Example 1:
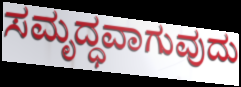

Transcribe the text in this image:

ಸಮೃದ್ಧವಾಗುವುದು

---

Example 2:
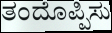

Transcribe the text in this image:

ತಂದೊಪ್ಪಿಸು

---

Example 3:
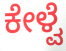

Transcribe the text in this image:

ಕೇಳ್ವೆ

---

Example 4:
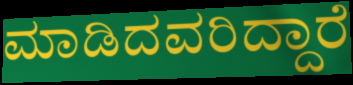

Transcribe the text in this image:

ಮಾಡಿದವರಿದ್ದಾರೆ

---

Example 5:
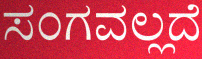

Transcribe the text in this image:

ಸಂಗವಲ್ಲದೆ